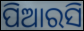
ପିଆରସି